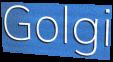
Golgi